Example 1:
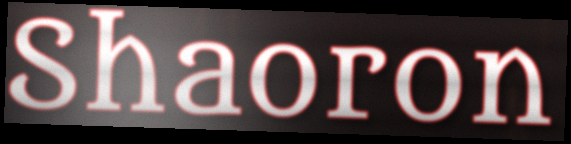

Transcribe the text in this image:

Shaoron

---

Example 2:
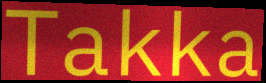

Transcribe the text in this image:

Takka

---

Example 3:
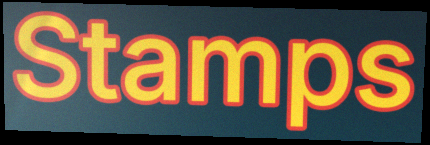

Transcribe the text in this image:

Stamps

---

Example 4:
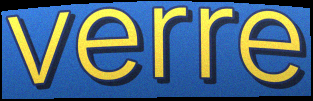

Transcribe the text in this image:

verre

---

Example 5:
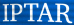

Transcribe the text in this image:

IPTAR